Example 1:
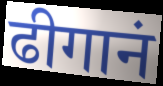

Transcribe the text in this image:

ढीगानं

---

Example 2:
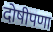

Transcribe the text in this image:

दोषीपणा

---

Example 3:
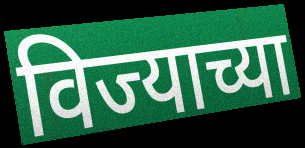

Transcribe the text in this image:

विज्याच्या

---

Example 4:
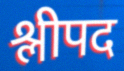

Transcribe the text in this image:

श्लीपद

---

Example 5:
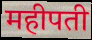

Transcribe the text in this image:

महीपती